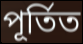
পূৰ্তিত